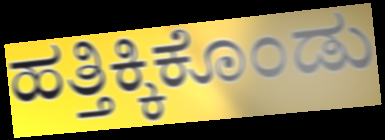
ಹತ್ತಿಕ್ಕಿಕೊಂಡು